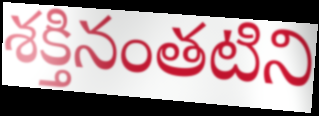
శక్తినంతటిని